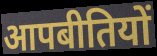
आपबीतियों